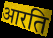
आरति